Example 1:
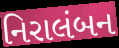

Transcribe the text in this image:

નિરાલંબન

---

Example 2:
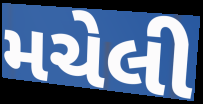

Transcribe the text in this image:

મચેલી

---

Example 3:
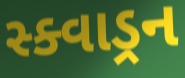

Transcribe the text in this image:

સ્ક્વાડ્રન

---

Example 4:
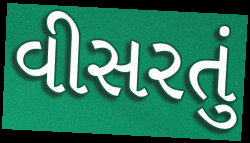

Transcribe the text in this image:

વીસરતું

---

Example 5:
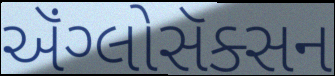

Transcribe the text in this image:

ઍંગ્લોસૅક્સન